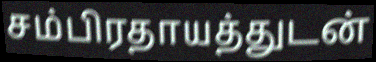
சம்பிரதாயத்துடன்